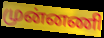
முன்னணி